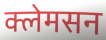
क्लेमसन